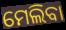
ମେଲିବା